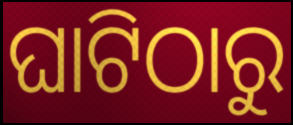
ଘାଟିଠାରୁ